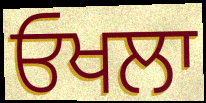
ਓਖਲਾ